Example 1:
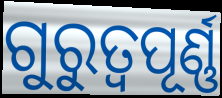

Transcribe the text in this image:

ଗୁରୁତ୍ବପୂର୍ଣ୍ଣ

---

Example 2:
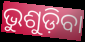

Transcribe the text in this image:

ଭୁଶୁଡ଼ିବା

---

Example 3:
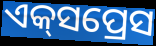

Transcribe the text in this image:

ଏକ୍‌ସପ୍ରେସ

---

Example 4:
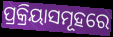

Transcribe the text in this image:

ପ୍ରକ୍ରିୟାସମୂହରେ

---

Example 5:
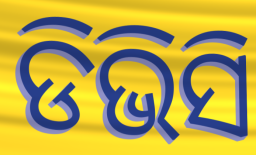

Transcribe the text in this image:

ଡିଭିସି